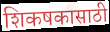
शिकषकासाठी